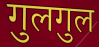
गुलगुल